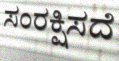
ಸಂರಕ್ಷಿಸದೆ